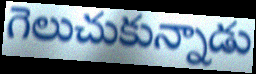
గెలుచుకున్నాడు